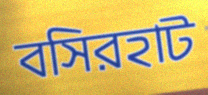
বসিরহাট